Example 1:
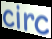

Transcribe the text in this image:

circ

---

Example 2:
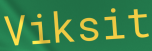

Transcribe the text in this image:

Viksit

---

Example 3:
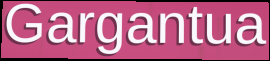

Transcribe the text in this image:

Gargantua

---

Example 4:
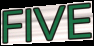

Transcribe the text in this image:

FIVE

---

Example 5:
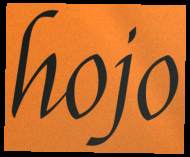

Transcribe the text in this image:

hojo